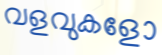
വളവുകളോ